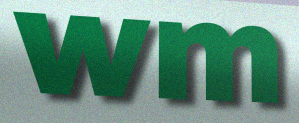
wm